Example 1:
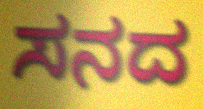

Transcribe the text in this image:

ಸನದ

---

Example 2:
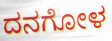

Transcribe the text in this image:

ದನಗೋಳ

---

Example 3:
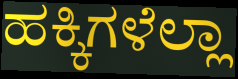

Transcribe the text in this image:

ಹಕ್ಕಿಗಳೆಲ್ಲಾ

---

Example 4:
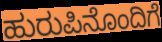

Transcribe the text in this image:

ಹುರುಪಿನೊಂದಿಗೆ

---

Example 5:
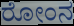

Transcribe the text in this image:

ರೋಂನ